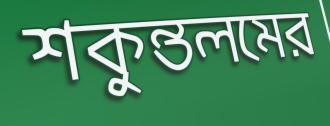
শকুন্তলমের